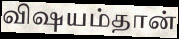
விஷயம்தான்